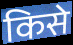
किसे